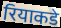
रियाकडे